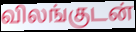
விலங்குடன்